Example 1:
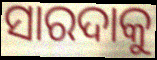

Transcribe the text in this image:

ସାରଦାକୁ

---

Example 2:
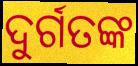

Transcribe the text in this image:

ଦୁର୍ଗତଙ୍କ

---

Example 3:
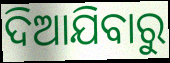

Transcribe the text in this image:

ଦିଆଯିବାରୁ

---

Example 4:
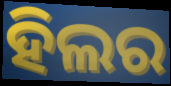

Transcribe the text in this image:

ହିଲର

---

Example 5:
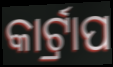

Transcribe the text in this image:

କାର୍ଟ୍ରାପ